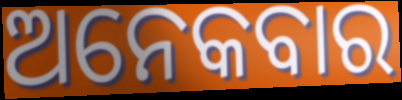
ଅନେକବାର